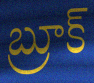
బ్రూక్